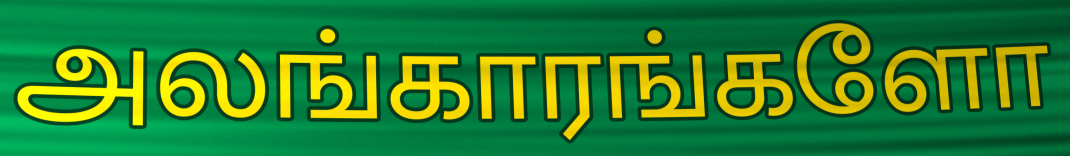
அலங்காரங்களோ